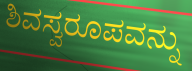
ಶಿವಸ್ವರೂಪವನ್ನು